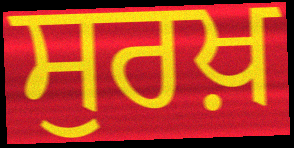
ਸੁਰਖ਼